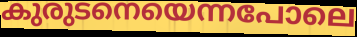
കുരുടനെയെന്നപോലെ